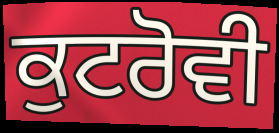
ਕੁਟਰੋਵੀ